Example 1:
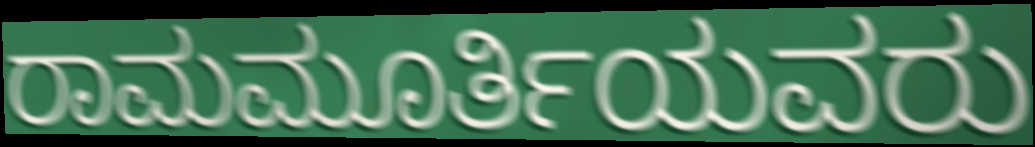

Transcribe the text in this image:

ರಾಮಮೂರ್ತಿಯವರು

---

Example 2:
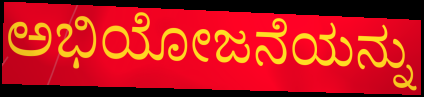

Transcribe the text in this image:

ಅಭಿಯೋಜನೆಯನ್ನು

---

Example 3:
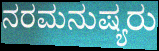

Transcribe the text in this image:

ನರಮನುಷ್ಯರು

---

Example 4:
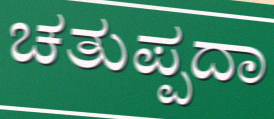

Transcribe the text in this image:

ಚತುಪ್ಪದಾ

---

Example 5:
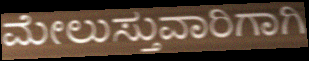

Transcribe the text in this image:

ಮೇಲುಸ್ತುವಾರಿಗಾಗಿ